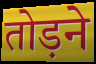
तोड़ने